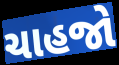
ચાહજો